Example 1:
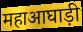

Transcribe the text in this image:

महाआघाड़ी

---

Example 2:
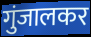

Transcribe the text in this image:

गुंजालकर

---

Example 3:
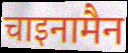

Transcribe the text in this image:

चाइनामैन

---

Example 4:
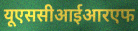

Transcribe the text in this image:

यूएससीआईआरएफ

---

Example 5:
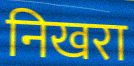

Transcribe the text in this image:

निखरा